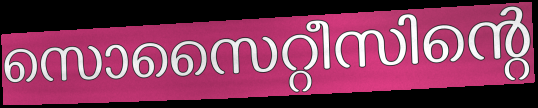
സൊസൈറ്റീസിന്റെ